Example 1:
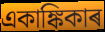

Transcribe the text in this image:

একাঙ্কিকাৰ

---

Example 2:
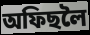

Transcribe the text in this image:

অফিছলৈ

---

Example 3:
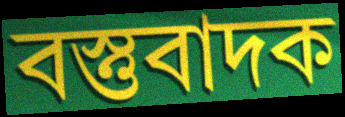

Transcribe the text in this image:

বস্তুবাদক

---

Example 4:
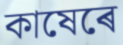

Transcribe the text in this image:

কাষেৰে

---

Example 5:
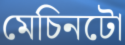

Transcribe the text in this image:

মেচিনটো